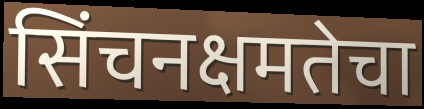
सिंचनक्षमतेचा